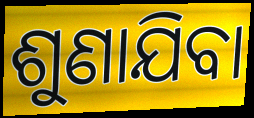
ଶୁଣାଯିବା